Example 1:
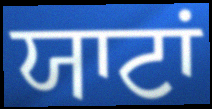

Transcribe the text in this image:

ਯਾਟਾਂ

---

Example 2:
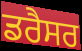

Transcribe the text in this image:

ਡਰੈਸਰ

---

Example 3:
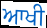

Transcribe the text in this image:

ਆਖੀ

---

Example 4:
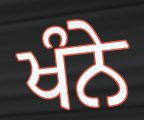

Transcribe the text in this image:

ਖੰਨੇ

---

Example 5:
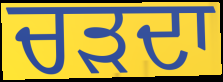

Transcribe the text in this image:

ਚੜਦਾ